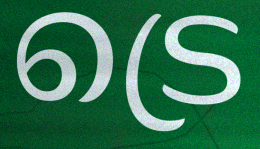
ട്രെ